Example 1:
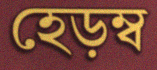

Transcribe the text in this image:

হেড়ম্ব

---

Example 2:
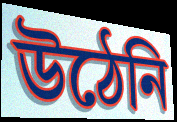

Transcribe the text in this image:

উঠেনি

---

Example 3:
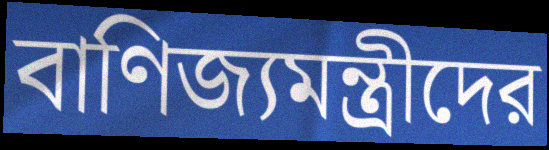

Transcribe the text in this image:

বাণিজ্যমন্ত্রীদের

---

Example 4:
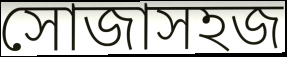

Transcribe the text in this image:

সোজাসহজ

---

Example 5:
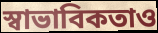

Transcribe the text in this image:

স্বাভাবিকতাও